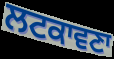
ਲਟਕਾਵਣਾ